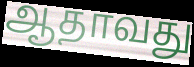
ஆதாவது